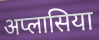
अप्लासिया